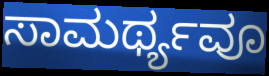
ಸಾಮರ್ಥ್ಯವೂ